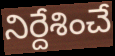
నిర్దేశించే